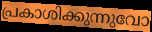
പ്രകാശിക്കുന്നുവോ